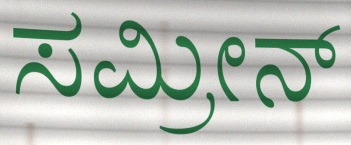
ಸಮ್ರೀನ್